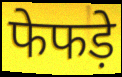
फेफड़े